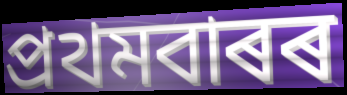
প্ৰথমবাৰৰ